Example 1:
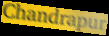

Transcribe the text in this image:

Chandrapur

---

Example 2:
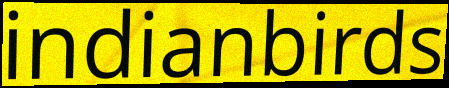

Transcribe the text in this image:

indianbirds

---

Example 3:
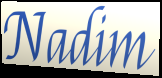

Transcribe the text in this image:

Nadim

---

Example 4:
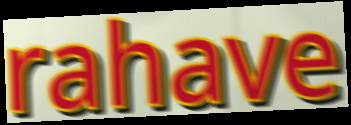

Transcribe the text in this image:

rahave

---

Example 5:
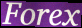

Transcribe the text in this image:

Forex